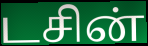
டசின்